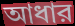
আধার